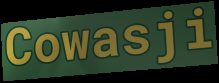
Cowasji